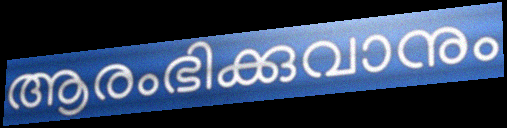
ആരംഭിക്കുവാനും